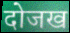
दोजख